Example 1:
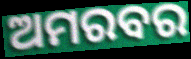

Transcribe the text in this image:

ଅମରବର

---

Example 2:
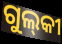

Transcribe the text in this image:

ଗୁଲ୍‌କୀ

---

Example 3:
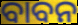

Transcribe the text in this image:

ବାବନ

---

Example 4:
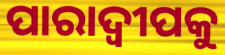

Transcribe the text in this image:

ପାରାଦ୍ୱୀପକୁ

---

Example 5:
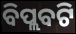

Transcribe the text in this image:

ବିପ୍ଲବଟି